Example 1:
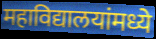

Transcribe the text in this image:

महाविद्यालयांमध्ये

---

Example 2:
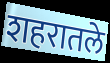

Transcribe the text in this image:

शहरातले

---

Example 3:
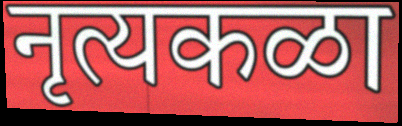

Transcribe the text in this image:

नृत्यकळा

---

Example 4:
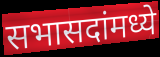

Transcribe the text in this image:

सभासदांमध्ये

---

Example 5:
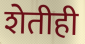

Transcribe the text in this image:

शेतीही